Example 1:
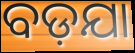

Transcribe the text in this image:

ବଡ଼ଯା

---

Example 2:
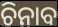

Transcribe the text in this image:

ଚିନାବ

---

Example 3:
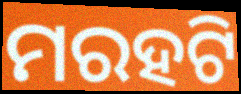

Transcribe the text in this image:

ମରହଟି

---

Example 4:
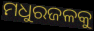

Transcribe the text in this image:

ମଧୁରଜଳକୁ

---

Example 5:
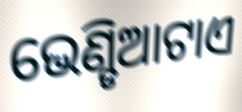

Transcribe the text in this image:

ଭେଣ୍ଡିଆଟାଏ